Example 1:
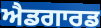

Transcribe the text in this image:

ਐਡਗਾਰਡ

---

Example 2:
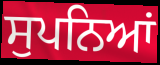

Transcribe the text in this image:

ਸੁਪਨਿਆਂ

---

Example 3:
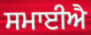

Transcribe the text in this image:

ਸਮਾਈਐ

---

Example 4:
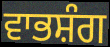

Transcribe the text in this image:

ਵਾਭਸ਼ੰਗ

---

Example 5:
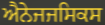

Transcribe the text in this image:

ਐਨੇਜਜਸਿਕਸ